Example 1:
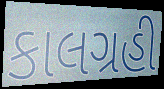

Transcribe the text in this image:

કાલગ્રહી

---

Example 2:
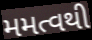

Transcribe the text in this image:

મમત્વથી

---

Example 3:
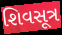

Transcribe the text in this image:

શિવસૂત્ર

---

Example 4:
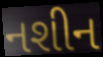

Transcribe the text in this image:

નશીન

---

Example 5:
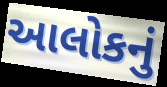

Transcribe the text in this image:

આલોકનું